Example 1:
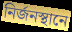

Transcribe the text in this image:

নির্জনস্থানে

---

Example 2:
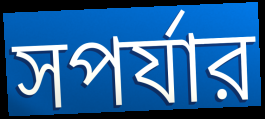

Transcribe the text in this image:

সপর্যার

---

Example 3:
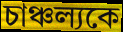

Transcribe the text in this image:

চাঞ্চল্যকে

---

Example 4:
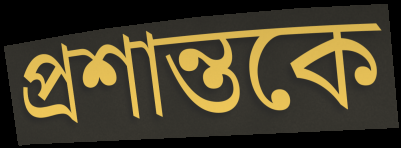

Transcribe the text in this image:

প্রশান্তকে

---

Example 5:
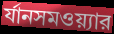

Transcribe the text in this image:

র্যানসমওয়্যার